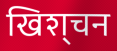
खिश्चन